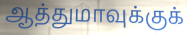
ஆத்துமாவுக்குக்